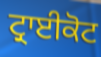
ਟ੍ਰਾਈਕੋਟ